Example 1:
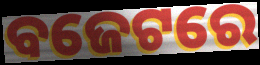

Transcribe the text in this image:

ବଜେଟରେ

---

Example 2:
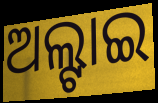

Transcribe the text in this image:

ଅଲ୍ଟାଇ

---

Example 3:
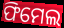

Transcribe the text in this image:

ଫିମେଲ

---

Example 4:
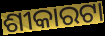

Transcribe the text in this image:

ଶୀକାରଟା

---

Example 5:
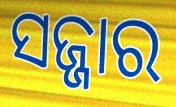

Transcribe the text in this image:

ସଜ୍ଜାର